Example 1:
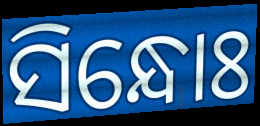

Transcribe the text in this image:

ସିନ୍ଧୋଃ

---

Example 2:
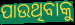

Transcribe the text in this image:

ପାଉଥିବାକୁ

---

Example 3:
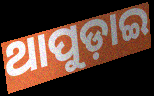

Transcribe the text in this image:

ଥାପୁଡ଼ାଇ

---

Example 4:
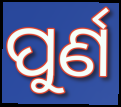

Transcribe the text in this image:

ପୁର୍ଣ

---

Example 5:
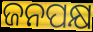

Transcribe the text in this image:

ଜନପକ୍ଷ